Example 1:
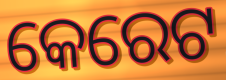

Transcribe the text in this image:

କେରେଟ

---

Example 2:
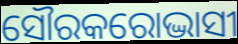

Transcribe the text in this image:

ସୌରକରୋଦ୍ଭାସୀ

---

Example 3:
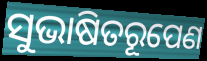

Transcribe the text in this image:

ସୁଭାଷିତରୂପେଣ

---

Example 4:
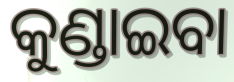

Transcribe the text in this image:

କୁଣ୍ଡାଇବା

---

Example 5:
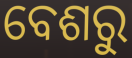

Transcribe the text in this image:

ବେଶରୁ